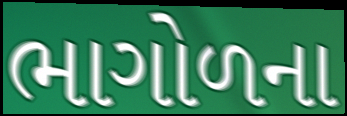
ભાગોળના